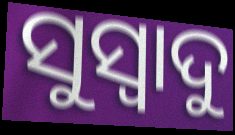
ସୁସ୍ଵାଦୁ